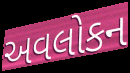
અવલોકન